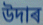
উদাৰ